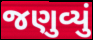
જણુવ્યું